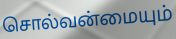
சொல்வன்மையும்